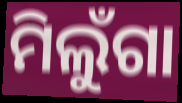
ମିଲୁଁଗା